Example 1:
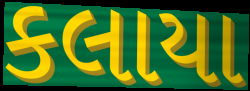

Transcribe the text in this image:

કલાયા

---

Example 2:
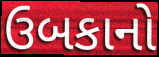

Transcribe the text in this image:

ઉબકાનો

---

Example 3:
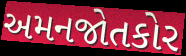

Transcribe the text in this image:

અમનજોતકોર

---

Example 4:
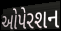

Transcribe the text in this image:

ઓપેરશન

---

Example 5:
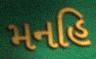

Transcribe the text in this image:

મનહિ